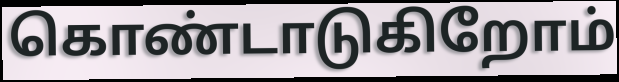
கொண்டாடுகிறோம்